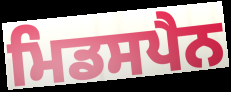
ਮਿਡਸਪੈਨ